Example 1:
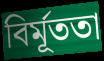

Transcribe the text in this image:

বির্মূততা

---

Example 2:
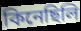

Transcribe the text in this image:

কিনেছিলি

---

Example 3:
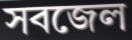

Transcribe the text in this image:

সবজেল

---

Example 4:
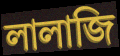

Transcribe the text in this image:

লালাজি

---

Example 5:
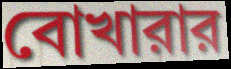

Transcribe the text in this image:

বোখারার